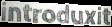
introduxit